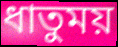
ধাতুময়